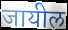
जायील